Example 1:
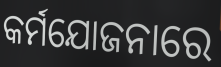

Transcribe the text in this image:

କର୍ମଯୋଜନାରେ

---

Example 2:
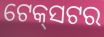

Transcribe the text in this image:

ଟେକ୍‌ସଟର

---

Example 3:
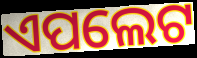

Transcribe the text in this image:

ଏପଲେଟ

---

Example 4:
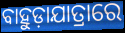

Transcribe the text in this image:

ବାହୁଡ଼ାଯାତ୍ରାରେ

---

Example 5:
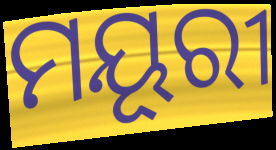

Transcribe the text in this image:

ମୟୂରୀ